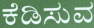
ಕೆಡಿಸುವ